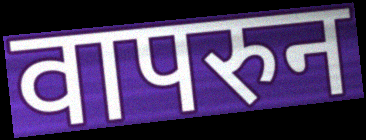
वापरुन